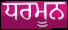
ਧਰਮੂਨ